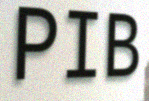
PIB